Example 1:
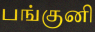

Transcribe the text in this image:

பங்குனி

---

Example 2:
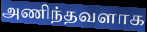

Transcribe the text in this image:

அணிந்தவளாக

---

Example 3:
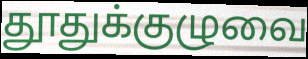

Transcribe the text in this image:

தூதுக்குழுவை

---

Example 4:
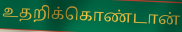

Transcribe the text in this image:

உதறிக்கொண்டான்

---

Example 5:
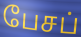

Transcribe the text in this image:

பேசப்